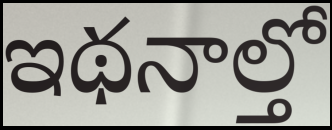
ఇథనాల్తో